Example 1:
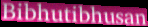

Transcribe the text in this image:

Bibhutibhusan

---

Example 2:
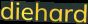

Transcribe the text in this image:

diehard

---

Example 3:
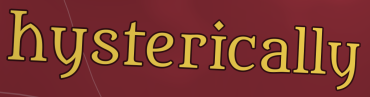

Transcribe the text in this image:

hysterically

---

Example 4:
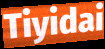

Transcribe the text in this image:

Tiyidai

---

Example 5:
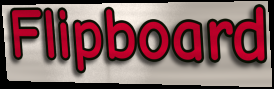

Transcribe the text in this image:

Flipboard